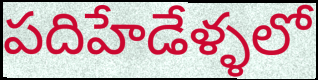
పదిహేడేళ్ళలో